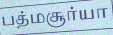
பத்மசூர்யா